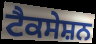
ਟੈਕਸੇਸ਼ਨ